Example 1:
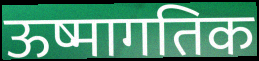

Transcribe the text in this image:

ऊष्मागतिक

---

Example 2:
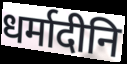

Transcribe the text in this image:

धर्मादीनि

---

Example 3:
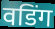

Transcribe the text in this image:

वडिंग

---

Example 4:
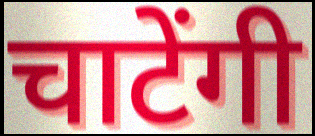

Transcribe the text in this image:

चाटेंगी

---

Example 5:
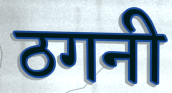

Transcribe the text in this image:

ठगनी